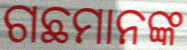
ଗଛମାନଙ୍କ